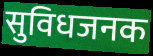
सुविधजनक